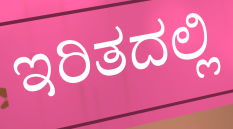
ಇರಿತದಲ್ಲಿ